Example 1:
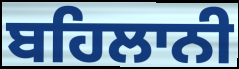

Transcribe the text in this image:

ਬਹਿਲਾਨੀ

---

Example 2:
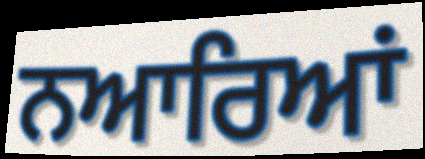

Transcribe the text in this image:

ਨਆਰਿਆਂ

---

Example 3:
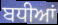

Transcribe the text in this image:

ਬਧੀਆਂ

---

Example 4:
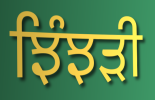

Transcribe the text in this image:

ਝਿੰਝੜੀ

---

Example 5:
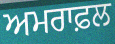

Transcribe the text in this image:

ਅਮਰਾਫ਼ਲ